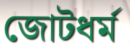
জোটধর্ম